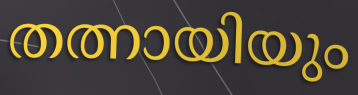
തത്നായിയും